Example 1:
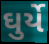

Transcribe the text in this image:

ઘુર્યે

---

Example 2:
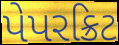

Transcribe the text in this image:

પેપરક્રિટ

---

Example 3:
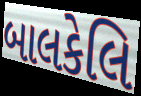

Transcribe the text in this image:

બાલકેલિ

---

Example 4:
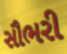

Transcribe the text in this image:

સૌભરી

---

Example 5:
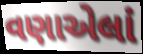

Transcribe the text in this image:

વણાએલાં